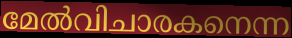
മേൽവിചാരകനെന്ന